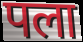
पला